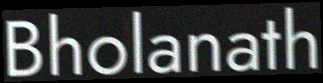
Bholanath